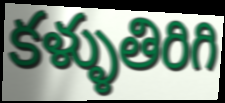
కళ్ళుతిరిగి